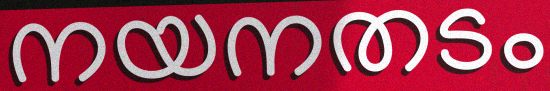
നയനതടം